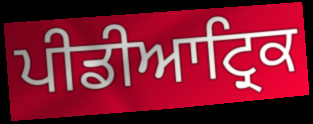
ਪੀਡੀਆਟ੍ਰਿਕ